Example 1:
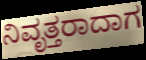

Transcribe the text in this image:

ನಿವೃತ್ತರಾದಾಗ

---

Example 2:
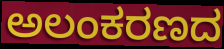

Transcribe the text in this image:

ಅಲಂಕರಣದ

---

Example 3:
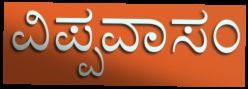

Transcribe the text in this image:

ವಿಪ್ಪವಾಸಂ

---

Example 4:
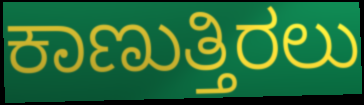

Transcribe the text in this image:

ಕಾಣುತ್ತಿರಲು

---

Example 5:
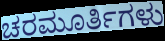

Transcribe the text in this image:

ಚರಮೂರ್ತಿಗಳು